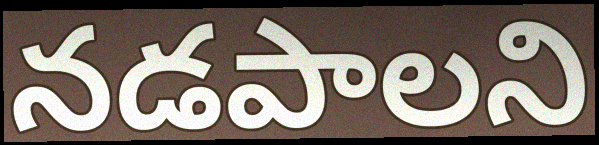
నడపాలని